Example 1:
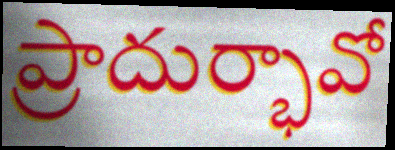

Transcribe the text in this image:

ప్రాదుర్భావో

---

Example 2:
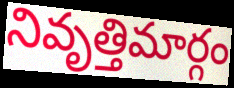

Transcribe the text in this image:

నివృత్తిమార్గం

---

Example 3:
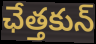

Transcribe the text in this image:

ఛేత్తకున్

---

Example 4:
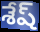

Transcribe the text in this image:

శేష్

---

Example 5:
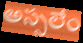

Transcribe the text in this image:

అస్సలేం